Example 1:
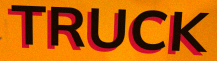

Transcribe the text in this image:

TRUCK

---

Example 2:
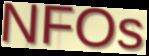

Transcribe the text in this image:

NFOs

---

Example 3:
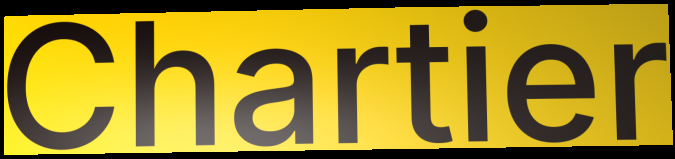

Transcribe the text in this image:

Chartier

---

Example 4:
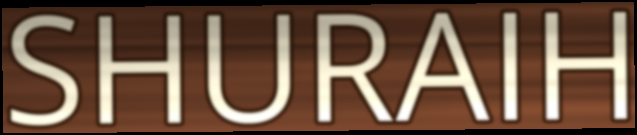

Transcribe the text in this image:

SHURAIH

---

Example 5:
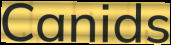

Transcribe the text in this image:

Canids